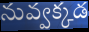
నువ్వక్కడ